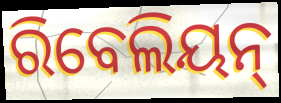
ରିବେଲିୟନ୍